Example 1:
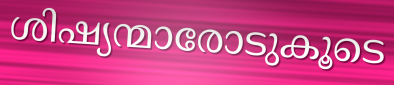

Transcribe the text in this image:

ശിഷ്യന്മാരോടുകൂടെ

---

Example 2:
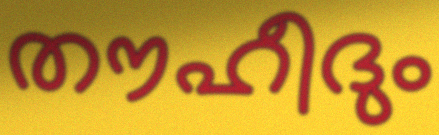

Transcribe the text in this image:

തൗഹീദും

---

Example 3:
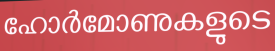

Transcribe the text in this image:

ഹോർമോണുകളുടെ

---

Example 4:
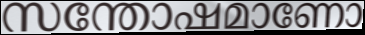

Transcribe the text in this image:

സന്തോഷമാണോ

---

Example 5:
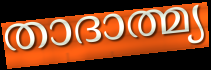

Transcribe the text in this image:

താദാത്മ്യ